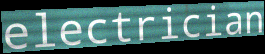
electrician